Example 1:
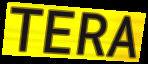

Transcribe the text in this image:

TERA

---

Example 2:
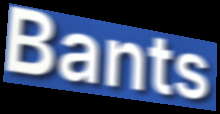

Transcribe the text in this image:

Bants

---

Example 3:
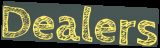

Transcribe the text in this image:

Dealers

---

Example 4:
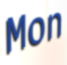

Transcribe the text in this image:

Mon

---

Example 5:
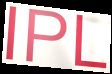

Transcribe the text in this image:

IPL